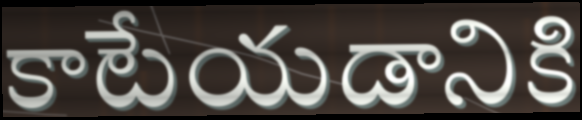
కాటేయడానికి